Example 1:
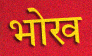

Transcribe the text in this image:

भोख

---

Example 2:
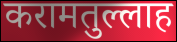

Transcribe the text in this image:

करामतुल्लाह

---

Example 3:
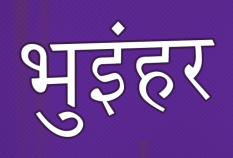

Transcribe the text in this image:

भुइंहर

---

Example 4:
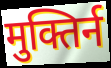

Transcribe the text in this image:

मुक्तिर्न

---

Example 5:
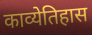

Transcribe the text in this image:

काव्येतिहास